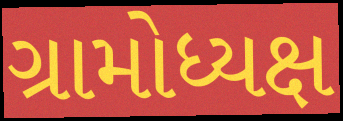
ગ્રામોધ્યક્ષ